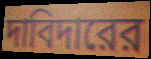
দাবিদারের